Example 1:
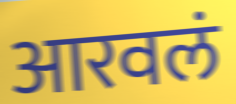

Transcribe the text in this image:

आरवलं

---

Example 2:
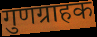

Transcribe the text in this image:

गुणग्राहक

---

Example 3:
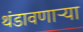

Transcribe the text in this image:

थंडावणाऱ्या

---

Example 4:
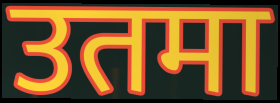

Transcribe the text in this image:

उतमा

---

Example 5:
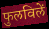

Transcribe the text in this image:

फुलविलें